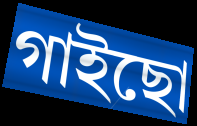
গাইছো